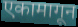
एकामागून